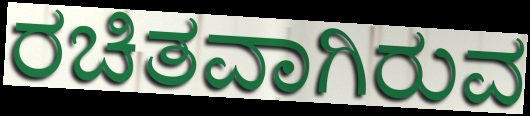
ರಚಿತವಾಗಿರುವ